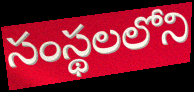
సంస్థలలోని